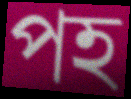
পহ